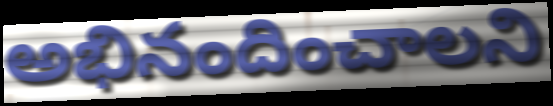
అభినందించాలని